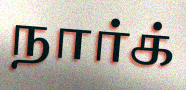
நார்க்